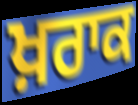
ਖ਼ਰਾਕ